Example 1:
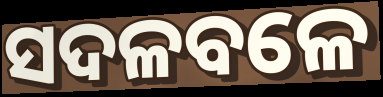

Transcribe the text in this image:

ସଦଳବଳେ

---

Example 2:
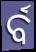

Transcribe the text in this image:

ର୍ବ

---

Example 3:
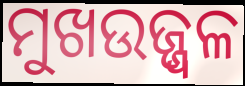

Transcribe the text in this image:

ମୁଖଉଜ୍ଜ୍ୱଳ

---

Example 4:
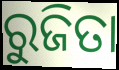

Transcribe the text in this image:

ରୁଜିତା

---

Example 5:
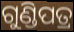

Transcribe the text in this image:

ଗୁଣ୍ଡିପତ୍ର